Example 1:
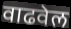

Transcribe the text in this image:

वाढवेल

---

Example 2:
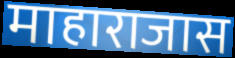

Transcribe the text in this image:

माहाराजास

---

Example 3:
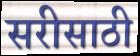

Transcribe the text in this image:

सरीसाठी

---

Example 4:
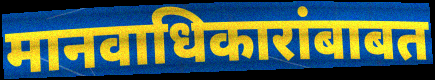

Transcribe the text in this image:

मानवाधिकारांबाबत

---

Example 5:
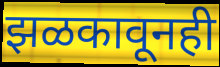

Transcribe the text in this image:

झळकावूनही